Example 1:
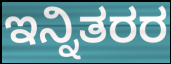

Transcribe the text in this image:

ಇನ್ನಿತರರ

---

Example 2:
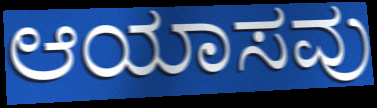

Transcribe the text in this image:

ಆಯಾಸವು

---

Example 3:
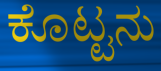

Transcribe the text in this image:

ಕೊಟ್ಟನು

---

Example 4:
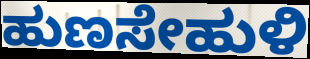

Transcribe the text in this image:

ಹುಣಸೇಹುಳಿ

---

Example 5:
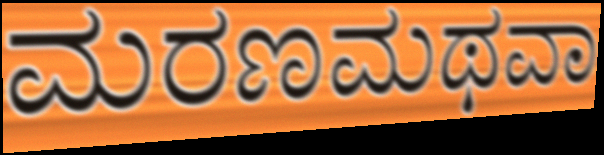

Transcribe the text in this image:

ಮರಣಮಥವಾ